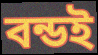
বন্ডই